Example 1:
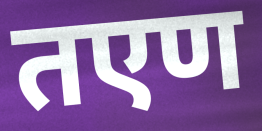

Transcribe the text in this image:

तएण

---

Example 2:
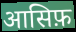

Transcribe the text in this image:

आसिफ़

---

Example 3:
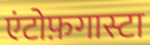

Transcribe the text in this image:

एंटोफ़गास्टा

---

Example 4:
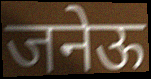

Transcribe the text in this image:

जनेऊ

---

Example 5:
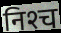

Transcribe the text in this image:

निश्च